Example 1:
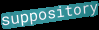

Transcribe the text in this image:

suppository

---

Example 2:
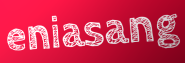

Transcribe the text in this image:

eniasang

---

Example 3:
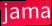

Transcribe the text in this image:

jama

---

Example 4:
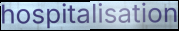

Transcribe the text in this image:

hospitalisation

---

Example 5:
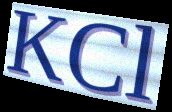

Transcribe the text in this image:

KCl